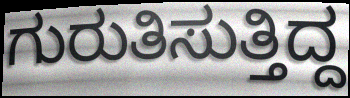
ಗುರುತಿಸುತ್ತಿದ್ದ